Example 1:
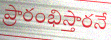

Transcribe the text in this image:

ప్రారంభిస్తారనే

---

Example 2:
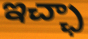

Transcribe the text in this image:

ఇచ్ఛా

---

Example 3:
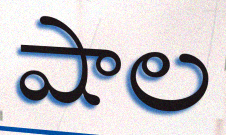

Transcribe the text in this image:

షాల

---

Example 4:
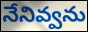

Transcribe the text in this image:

నేనివ్వను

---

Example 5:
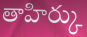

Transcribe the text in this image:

తాహిర్కు